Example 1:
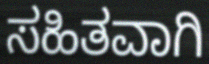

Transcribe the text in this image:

ಸಹಿತವಾಗಿ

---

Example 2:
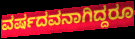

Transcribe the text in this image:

ವರ್ಷದವನಾಗಿದ್ದರೂ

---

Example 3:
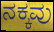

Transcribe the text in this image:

ನಕ್ಕವು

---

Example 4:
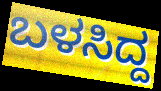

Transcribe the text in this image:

ಬಳಸಿದ್ದ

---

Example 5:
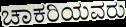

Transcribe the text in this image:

ಚಾಕರಿಯವರು